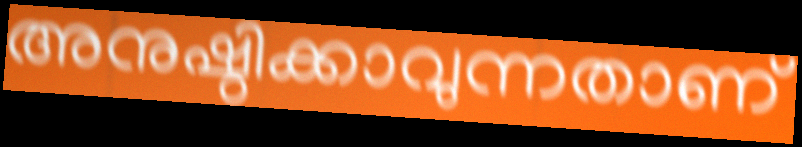
അനുഷ്ഠിക്കാവുന്നതാണ്